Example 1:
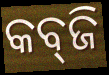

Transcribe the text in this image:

କବ୍‍ଜି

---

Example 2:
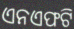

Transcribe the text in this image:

ଏନଏଫଟି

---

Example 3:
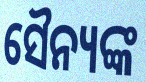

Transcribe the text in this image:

ସୈନ୍ୟଙ୍କ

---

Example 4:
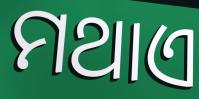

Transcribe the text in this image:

ମଥାଏ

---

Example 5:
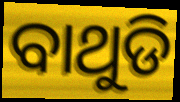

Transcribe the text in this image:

ବାଥୁଡି